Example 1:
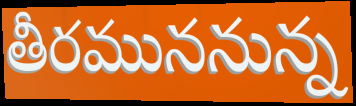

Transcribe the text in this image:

తీరముననున్న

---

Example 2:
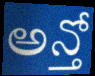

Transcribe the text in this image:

అన్తో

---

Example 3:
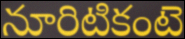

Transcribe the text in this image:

నూరిటికంటె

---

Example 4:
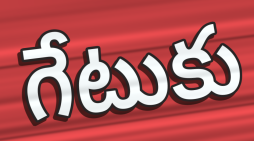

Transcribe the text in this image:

గేటుకు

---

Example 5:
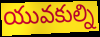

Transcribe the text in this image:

యువకుల్ని